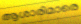
ആശാരിമാരെ